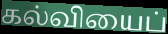
கல்வியைப்